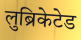
लुब्रिकेटेड